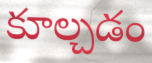
కూల్చడం